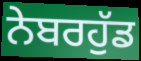
ਨੇਬਰਹੁੱਡ